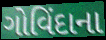
ગોવિંદાના